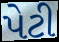
પેટી